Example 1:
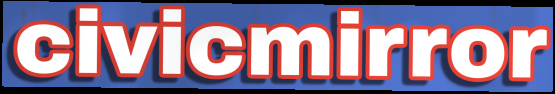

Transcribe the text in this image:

civicmirror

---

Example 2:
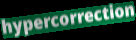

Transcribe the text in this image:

hypercorrection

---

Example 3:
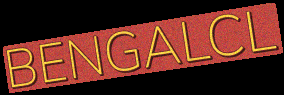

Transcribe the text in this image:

BENGALCL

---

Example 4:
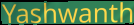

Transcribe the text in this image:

Yashwanth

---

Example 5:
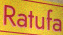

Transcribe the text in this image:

Ratufa